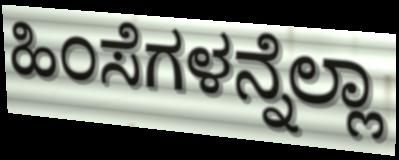
ಹಿಂಸೆಗಳನ್ನೆಲ್ಲಾ